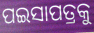
ପଇସାପତ୍ରକୁ